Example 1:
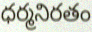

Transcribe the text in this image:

ధర్మనిరతం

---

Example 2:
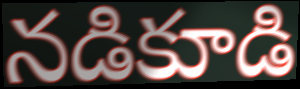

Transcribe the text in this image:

నడికూడి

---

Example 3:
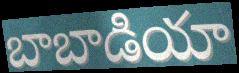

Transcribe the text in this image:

బాబాడియా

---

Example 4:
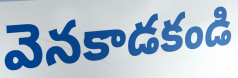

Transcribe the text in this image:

వెనకాడకండి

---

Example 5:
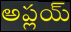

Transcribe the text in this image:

అప్లయ్